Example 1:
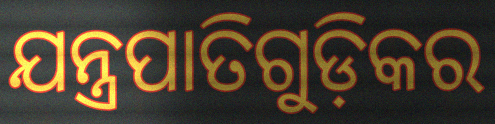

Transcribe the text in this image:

ଯନ୍ତ୍ରପାତିଗୁଡ଼ିକର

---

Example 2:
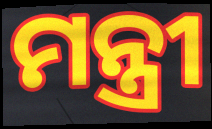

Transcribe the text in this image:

ମନ୍ତ୍ରୀ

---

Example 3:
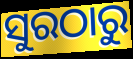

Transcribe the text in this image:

ସୁରଠାରୁ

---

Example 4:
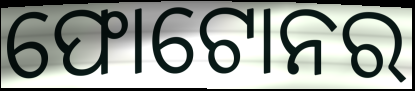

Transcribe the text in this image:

ଫୋଟୋନର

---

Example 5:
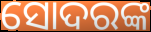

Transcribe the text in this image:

ସୋଦରଙ୍କ